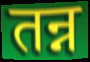
तन्न